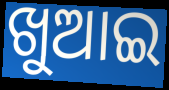
ଖୁଆଇ